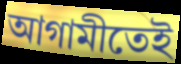
আগামীতেই